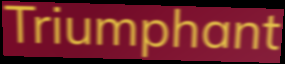
Triumphant